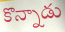
కొన్నాడు